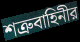
শত্রুবাহিনীর